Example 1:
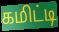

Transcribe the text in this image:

கமிட்டி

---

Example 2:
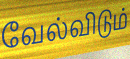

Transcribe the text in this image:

வேல்விடும்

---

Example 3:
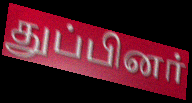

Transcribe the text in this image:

துப்பினர்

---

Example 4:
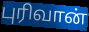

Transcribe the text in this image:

புரிவான்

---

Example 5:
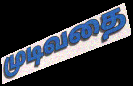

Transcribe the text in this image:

முடிவதை